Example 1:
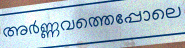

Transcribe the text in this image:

അർണ്ണവത്തെപ്പോലെ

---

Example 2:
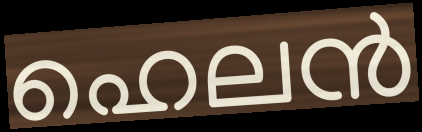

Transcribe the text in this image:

ഹെലൻ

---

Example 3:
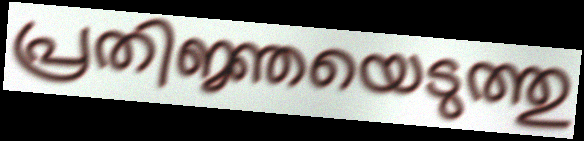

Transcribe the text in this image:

പ്രതിജ്ഞയെടുത്തു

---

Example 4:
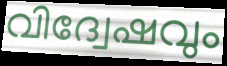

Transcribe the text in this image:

വിദ്വേഷവും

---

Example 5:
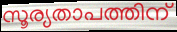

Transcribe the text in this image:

സൂര്യതാപത്തിന്